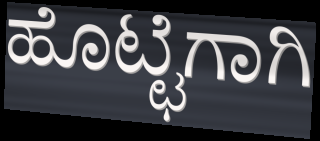
ಹೊಟ್ಟೆಗಾಗಿ